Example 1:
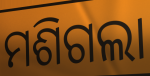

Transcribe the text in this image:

ମଶିଗଲା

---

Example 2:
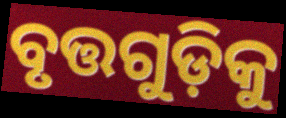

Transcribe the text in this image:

ବୃତ୍ତଗୁଡ଼ିକୁ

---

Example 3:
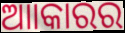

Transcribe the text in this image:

ଆାକାରର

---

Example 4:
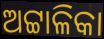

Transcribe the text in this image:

ଅଟ୍ଟାଳିକା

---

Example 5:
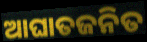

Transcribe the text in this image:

ଆଘାତଜନିତ